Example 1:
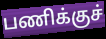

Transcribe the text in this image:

பணிக்குச்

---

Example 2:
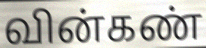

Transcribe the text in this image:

வின்கண்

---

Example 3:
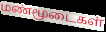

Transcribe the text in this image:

மண்மூடைகள்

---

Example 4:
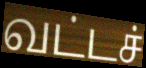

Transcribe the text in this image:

வட்டச்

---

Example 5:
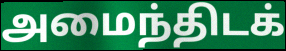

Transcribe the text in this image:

அமைந்திடக்